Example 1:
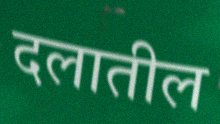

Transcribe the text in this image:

दलातील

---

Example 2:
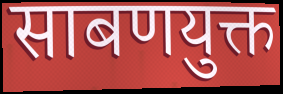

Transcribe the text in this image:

साबणयुक्त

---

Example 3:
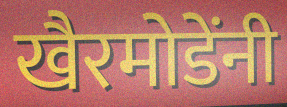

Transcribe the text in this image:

खैरमोडेंनी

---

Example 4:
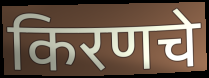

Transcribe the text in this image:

किरणचे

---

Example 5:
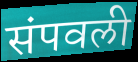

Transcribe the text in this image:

संपवली